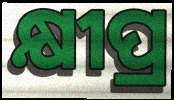
କ୍ଷୀପ୍ର